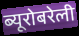
ब्यूरोबरेली